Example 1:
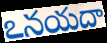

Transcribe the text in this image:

ఽనయదా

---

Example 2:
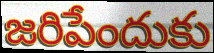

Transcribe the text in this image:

జరిపేందుకు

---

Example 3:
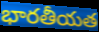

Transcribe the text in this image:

భారతీయత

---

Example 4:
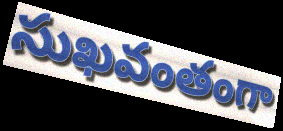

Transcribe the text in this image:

సుఖవంతంగా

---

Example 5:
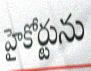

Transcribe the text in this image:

హైకోర్టును